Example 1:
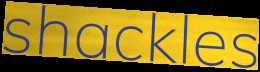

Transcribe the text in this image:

shackles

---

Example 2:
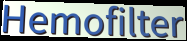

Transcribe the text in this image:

Hemofilter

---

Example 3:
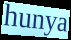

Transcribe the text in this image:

hunya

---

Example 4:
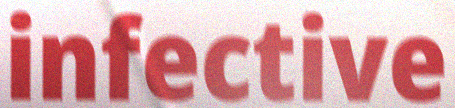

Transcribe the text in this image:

infective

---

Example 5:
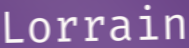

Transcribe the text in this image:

Lorrain